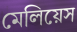
মেলিয়েস